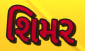
શિમર